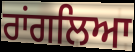
ਰਾਂਗਲਿਆ